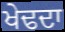
ਖੇਢਦਾ